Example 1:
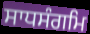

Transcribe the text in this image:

ਸਾਧਸੰਗਮਿ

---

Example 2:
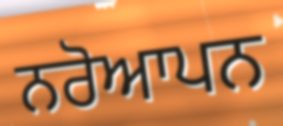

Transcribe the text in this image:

ਨਰੋਆਪਨ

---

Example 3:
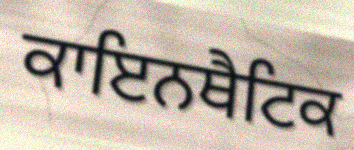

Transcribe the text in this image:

ਕਾਇਨਥੈਟਿਕ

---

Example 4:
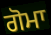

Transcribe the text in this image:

ਗੋਮਾ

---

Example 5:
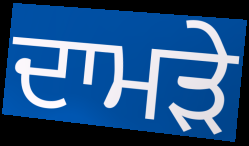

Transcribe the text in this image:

ਦਾਮੜੇ